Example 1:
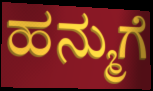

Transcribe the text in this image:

ಹನ್ಮುಗೆ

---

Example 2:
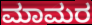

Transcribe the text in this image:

ಮಾಮರ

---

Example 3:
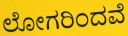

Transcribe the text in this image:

ಲೋಗರಿಂದವೆ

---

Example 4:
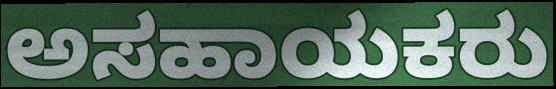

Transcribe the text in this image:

ಅಸಹಾಯಕರು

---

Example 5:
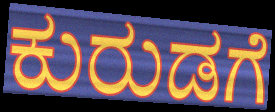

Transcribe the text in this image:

ಕುರುಡಗೆ